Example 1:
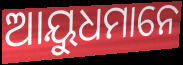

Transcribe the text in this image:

ଆୟୁଧମାନେ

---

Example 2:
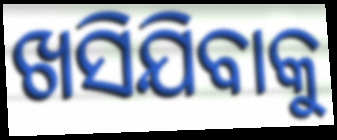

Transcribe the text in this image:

ଖସିଯିବାକୁ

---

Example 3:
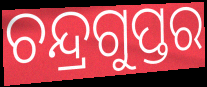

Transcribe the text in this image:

ଚନ୍ଦ୍ରଗୁପ୍ତର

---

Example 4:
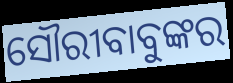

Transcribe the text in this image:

ସୌରୀବାବୁଙ୍କର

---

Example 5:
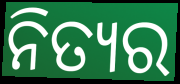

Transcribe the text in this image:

ନିତ୍ୟର